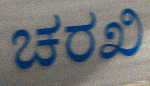
ಚರಖಿ